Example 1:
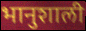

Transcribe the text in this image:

भानुशाली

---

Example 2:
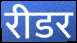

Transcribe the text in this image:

रीडर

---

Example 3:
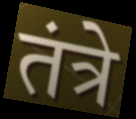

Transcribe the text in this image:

तंत्रे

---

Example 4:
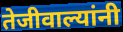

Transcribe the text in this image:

तेजीवाल्यांनी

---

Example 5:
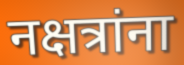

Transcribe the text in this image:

नक्षत्रांना